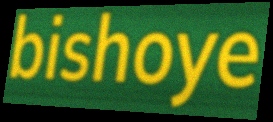
bishoye